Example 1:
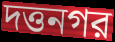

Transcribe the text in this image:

দত্তনগর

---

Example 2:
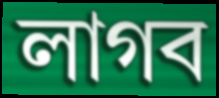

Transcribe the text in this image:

লাগব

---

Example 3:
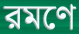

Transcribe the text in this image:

রমণে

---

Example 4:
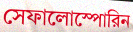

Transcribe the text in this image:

সেফালোস্পোরিন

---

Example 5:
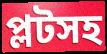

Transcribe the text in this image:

প্লটসহ